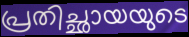
പ്രതിച്ഛായയുടെ